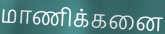
மாணிக்கனை